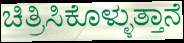
ಚಿತ್ರಿಸಿಕೊಳ್ಳುತ್ತಾನೆ